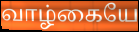
வாழ்கையே